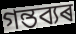
গন্তব্যৰ